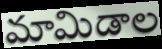
మామిడాల